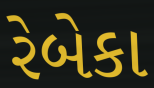
રેબેકા